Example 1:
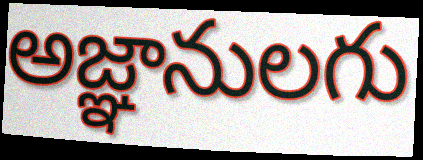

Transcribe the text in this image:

అజ్ఞానులగు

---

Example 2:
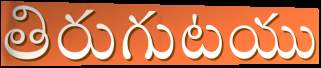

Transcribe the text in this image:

తిరుగుటయు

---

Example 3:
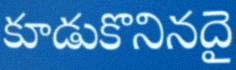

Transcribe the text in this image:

కూడుకొనినదై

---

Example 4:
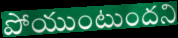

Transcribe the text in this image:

పోయుంటుందని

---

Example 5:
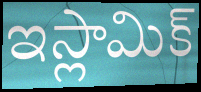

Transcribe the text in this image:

ఇస్లామిక్